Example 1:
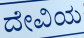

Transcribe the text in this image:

ದೇವಿಯ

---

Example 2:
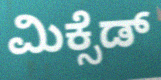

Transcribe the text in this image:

ಮಿಕ್ಸೆಡ್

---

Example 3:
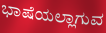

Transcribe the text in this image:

ಭಾಷೆಯಲ್ಲಾಗುವ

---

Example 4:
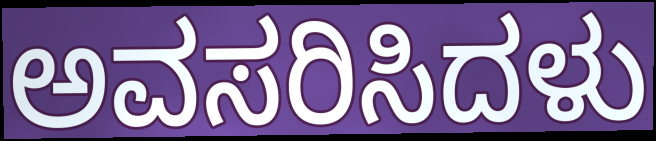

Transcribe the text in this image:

ಅವಸರಿಸಿದಳು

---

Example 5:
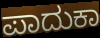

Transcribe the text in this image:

ಪಾದುಕಾ